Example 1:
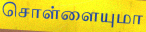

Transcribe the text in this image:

சொள்ளையுமா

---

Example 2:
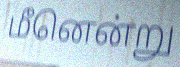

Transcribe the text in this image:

மீனென்று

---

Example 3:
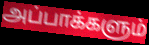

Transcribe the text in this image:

அப்பாக்களும்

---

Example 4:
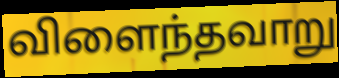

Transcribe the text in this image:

விளைந்தவாறு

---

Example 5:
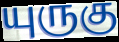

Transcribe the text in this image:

யுருகு